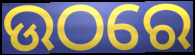
ଉଠରେ